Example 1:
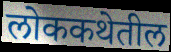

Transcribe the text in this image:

लोककथेतील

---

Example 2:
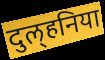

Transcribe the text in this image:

दुल्हनिया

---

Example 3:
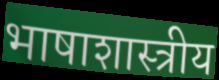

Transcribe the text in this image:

भाषाशास्त्रीय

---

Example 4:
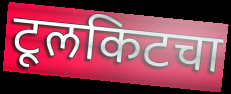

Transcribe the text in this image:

टूलकिटचा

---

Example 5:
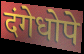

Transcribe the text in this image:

दंगेधोपे